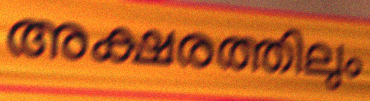
അക്ഷരത്തിലും